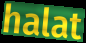
halat